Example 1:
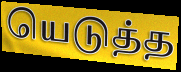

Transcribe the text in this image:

யெடுத்த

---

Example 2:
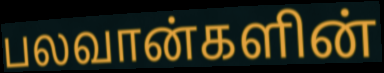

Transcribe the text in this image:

பலவான்களின்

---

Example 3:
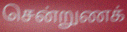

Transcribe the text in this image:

சென்றுணக்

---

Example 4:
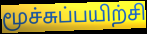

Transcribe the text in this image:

மூச்சுப்பயிற்சி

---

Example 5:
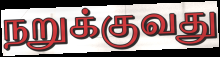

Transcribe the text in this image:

நறுக்குவது